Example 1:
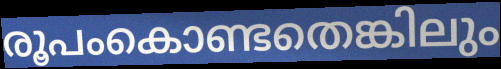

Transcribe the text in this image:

രൂപംകൊണ്ടതെങ്കിലും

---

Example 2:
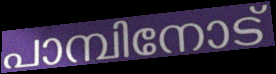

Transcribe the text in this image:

പാമ്പിനോട്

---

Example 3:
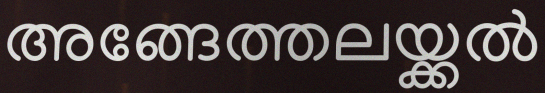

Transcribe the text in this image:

അങ്ങേത്തലയ്ക്കൽ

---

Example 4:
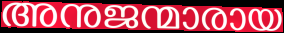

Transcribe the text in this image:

അനുജന്മാരായ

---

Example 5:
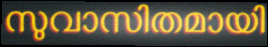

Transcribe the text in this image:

സുവാസിതമായി